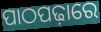
ପାଠପଢ଼ାରେ